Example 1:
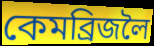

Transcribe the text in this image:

কেমব্ৰিজলৈ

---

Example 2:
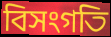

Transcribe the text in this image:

বিসংগতি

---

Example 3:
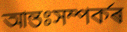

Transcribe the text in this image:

আন্তঃসম্পৰ্কৰ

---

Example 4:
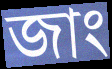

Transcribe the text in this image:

জাং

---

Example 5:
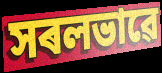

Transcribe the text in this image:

সৰলভাৱে